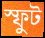
স্ফুট